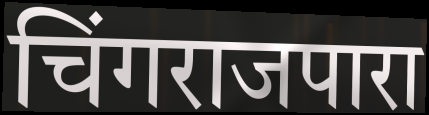
चिंगराजपारा